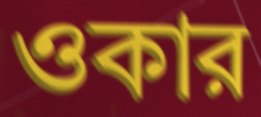
ওকার